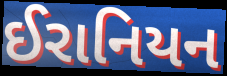
ઈરાનિયન